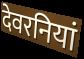
देवरनियां